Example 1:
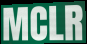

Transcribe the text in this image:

MCLR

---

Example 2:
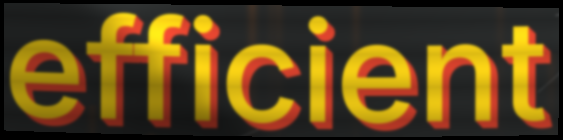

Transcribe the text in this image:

efficient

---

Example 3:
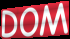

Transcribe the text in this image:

DOM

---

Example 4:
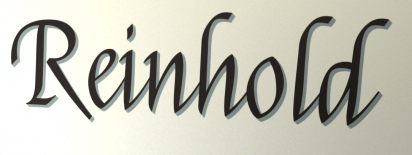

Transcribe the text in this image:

Reinhold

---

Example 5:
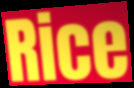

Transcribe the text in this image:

Rice